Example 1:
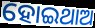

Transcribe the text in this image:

ହୋଇଥାଅ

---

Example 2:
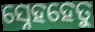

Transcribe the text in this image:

ସ୍ନେହହେତୁ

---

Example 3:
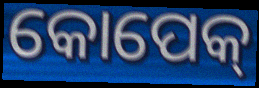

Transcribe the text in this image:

କୋପେକ୍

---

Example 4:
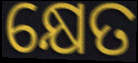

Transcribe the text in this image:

କ୍ଷେତ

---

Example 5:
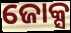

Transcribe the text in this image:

ଜୋକ୍ସ